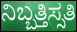
ನಿಬ್ಬತ್ತಿಸ್ಸತಿ